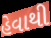
હેવાથી